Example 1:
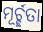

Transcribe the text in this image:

ମୂର୍ଚ୍ଛତା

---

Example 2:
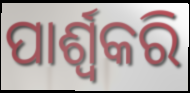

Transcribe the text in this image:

ପାର୍ଶ୍ଵକରି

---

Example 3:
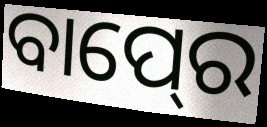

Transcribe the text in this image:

ବାପ୍‍ରେ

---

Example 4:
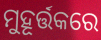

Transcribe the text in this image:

ମୁହୂର୍ତ୍ତକରେ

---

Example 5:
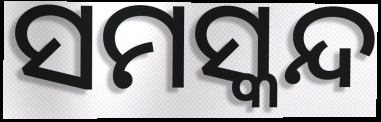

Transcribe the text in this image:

ସମସ୍କନ୍ଦ